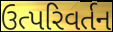
ઉત્પરિવર્તન